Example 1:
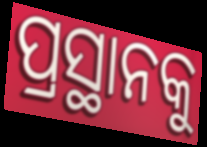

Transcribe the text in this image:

ପ୍ରସ୍ଥାନକୁ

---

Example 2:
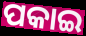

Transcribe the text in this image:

ପକାଇ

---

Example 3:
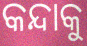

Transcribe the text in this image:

କନ୍ଦାକୁ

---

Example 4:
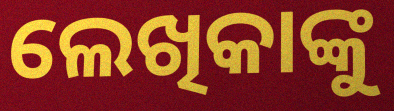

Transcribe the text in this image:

ଲେଖିକାଙ୍କୁ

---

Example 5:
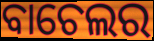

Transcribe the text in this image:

ବାଚେଲର